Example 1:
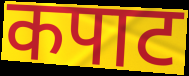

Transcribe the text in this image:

कपाट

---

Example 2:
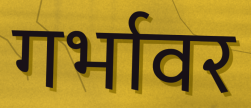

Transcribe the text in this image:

गर्भावर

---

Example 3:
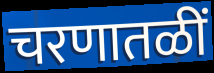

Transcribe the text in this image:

चरणातळीं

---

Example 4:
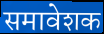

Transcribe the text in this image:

समावेशक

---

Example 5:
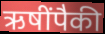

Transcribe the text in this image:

ऋषींपैकी